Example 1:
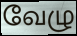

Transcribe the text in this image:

வேழு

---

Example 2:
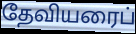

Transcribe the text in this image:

தேவியரைப்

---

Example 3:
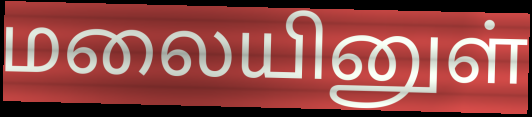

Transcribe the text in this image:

மலையினுள்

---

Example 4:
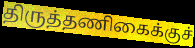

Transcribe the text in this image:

திருத்தணிகைக்குச்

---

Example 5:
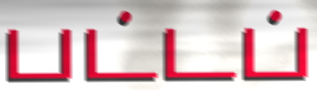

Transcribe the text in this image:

பட்டப்